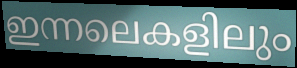
ഇന്നലെകളിലും